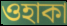
ওহাকা